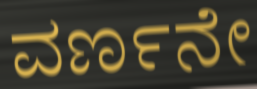
ವರ್ಣನೇ